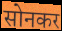
सोनकर